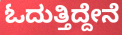
ಓದುತ್ತಿದ್ದೇನೆ